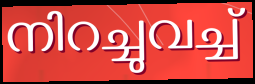
നിറച്ചുവച്ച്